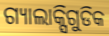
ଗ୍ୟାଲାକ୍ସିଗୁଡିକ